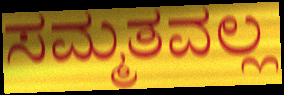
ಸಮ್ಮತವಲ್ಲ